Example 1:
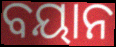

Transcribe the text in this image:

ବୟାନ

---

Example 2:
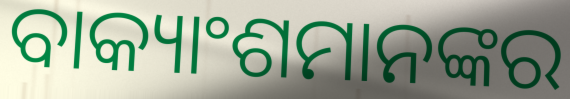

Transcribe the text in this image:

ବାକ୍ୟାଂଶମାନଙ୍କର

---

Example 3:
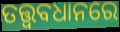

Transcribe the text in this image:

ତତ୍ତ୍ଵବଧାନରେ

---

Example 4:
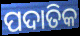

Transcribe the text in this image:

ପଦାତିକ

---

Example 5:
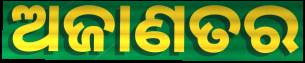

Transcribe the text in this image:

ଅଜାଣତର